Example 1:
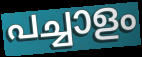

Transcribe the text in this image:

പച്ചാളം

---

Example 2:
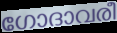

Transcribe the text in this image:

ഗോദാവരീ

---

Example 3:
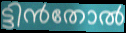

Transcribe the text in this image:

ട്ടിൻതോൽ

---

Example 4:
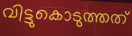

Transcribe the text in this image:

വിട്ടുകൊടുത്തത്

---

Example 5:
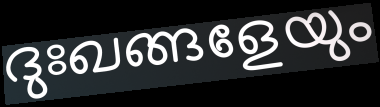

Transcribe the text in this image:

ദുഃഖങ്ങളേയും